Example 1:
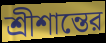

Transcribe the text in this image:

শ্রীশান্তের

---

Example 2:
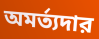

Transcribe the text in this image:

অমর্ত্যদার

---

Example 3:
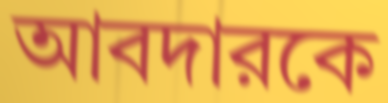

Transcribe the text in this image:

আবদারকে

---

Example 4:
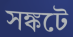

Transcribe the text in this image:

সঙ্কটে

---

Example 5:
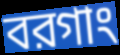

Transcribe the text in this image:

বরগাং